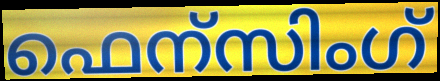
ഫെന്സിംഗ്